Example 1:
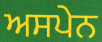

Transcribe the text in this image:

ਅਸਪੇਨ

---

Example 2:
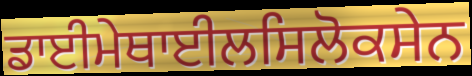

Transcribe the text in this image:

ਡਾਈਮੇਥਾਈਲਸਿਲੋਕਸੇਨ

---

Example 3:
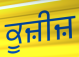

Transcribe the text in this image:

ਕੂਜ਼ੀਜ਼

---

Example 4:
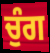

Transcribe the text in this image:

ਚੁੰਗ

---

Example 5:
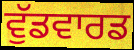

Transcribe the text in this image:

ਵੁੱਡਵਾਰਡ